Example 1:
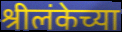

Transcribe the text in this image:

श्रीलंकेच्या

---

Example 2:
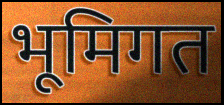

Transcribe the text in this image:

भूमिगत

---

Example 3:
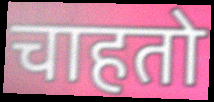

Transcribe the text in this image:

चाहतो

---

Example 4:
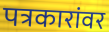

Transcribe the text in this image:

पत्रकारांवर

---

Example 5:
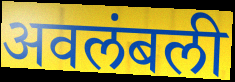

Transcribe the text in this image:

अवलंबली